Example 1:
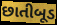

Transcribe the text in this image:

છાતીબૂડ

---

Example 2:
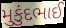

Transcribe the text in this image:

મુકુંદભાઈ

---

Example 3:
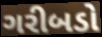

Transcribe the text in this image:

ગરીબડો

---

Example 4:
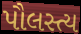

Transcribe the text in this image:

પૌલસ્ત્ય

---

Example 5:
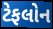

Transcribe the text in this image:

ટેફલોન